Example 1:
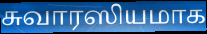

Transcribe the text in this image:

சுவாரஸியமாக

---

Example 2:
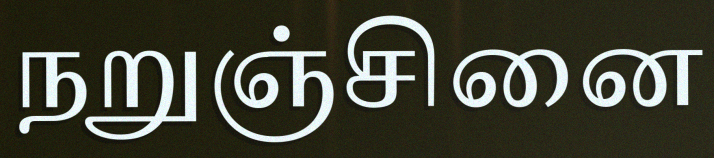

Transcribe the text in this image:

நறுஞ்சினை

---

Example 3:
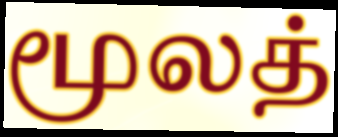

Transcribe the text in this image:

மூலத்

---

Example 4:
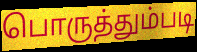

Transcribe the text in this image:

பொருத்தும்படி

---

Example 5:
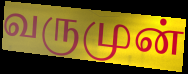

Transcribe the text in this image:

வருமுன்